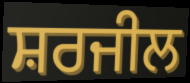
ਸ਼ਰਜੀਲ